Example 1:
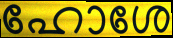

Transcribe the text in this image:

ഹോശേ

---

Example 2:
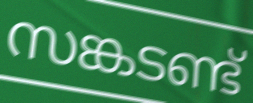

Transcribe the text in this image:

സങ്കടണ്ട്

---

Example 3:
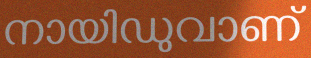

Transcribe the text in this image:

നായിഡുവാണ്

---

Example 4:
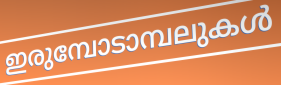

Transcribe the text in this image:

ഇരുമ്പോടാമ്പലുകൾ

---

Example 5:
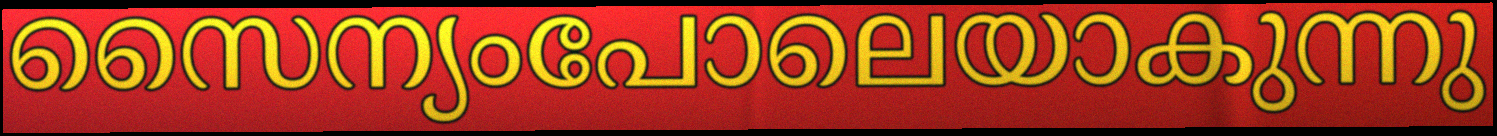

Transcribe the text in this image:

സൈന്യംപോലെയാകുന്നു